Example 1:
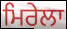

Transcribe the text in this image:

ਮਿਰੇਲਾ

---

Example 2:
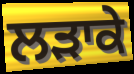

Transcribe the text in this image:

ਲੜਾਕੇ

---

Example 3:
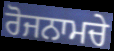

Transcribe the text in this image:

ਰੋਜਨਾਮਚੇ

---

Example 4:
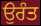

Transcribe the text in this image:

ਉਰੰਤ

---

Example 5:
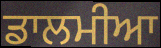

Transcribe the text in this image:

ਡਾਲਮੀਆ